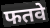
फतवे